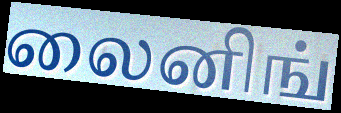
லைனிங்